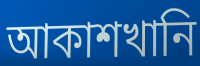
আকাশখানি